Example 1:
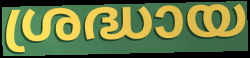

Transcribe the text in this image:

ശ്രദ്ധായ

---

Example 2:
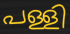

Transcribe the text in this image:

പള്ളി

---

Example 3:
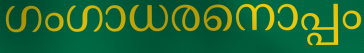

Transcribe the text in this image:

ഗംഗാധരനൊപ്പം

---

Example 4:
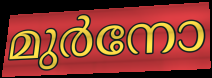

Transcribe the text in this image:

മുർനോ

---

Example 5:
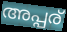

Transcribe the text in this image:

അപ്പര്